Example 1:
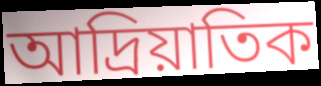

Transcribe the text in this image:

আদ্রিয়াতিক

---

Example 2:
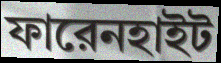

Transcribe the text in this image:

ফারেনহাইট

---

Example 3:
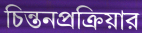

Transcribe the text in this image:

চিন্তনপ্রক্রিয়ার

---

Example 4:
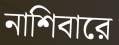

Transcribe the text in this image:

নাশিবারে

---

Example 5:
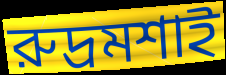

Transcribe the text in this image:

রুদ্রমশাই